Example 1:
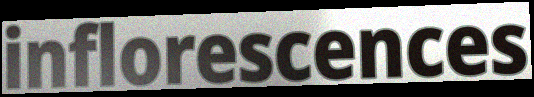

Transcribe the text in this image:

inflorescences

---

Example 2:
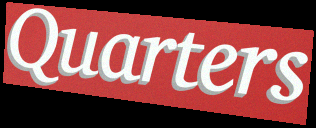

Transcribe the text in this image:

Quarters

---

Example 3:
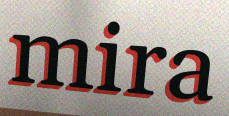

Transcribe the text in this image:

mira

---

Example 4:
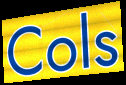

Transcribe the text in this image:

Cols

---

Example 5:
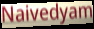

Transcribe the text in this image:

Naivedyam